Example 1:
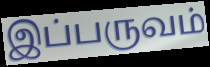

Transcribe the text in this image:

இப்பருவம்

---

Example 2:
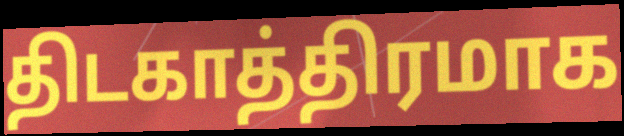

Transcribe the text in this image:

திடகாத்திரமாக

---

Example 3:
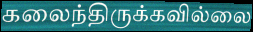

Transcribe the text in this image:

கலைந்திருக்கவில்லை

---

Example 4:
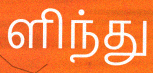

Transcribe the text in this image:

ளிந்து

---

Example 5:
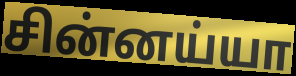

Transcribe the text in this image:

சின்னய்யா